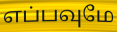
எப்பவுமே